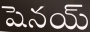
షెనయ్